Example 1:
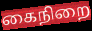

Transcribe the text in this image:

கைநிறை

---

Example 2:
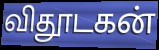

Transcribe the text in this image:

விதூடகன்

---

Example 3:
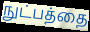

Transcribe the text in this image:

நுட்பத்தை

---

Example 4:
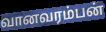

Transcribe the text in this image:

வானவரம்பன்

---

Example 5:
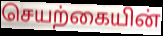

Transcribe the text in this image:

செயற்கையின்